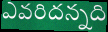
ఎవరిదన్నది